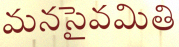
మనసైవమితి